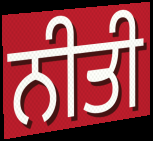
ਨੀਤੀ